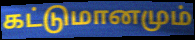
கட்டுமானமும்